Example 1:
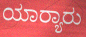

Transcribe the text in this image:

ಯಾರ‍್ಯಾರು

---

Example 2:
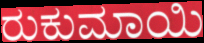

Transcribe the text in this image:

ರುಕುಮಾಯಿ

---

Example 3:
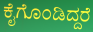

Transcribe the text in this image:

ಕೈಗೊಂಡಿದ್ದರೆ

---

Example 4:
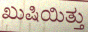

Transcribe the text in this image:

ಖುಷಿಯಿತ್ತು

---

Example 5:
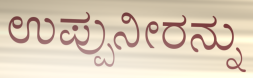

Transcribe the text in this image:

ಉಪ್ಪುನೀರನ್ನು